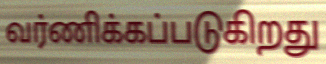
வர்ணிக்கப்படுகிறது